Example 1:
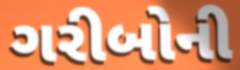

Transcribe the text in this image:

ગરીબોની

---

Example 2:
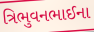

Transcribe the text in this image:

ત્રિભુવનભાઈના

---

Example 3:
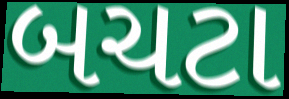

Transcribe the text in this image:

બચટા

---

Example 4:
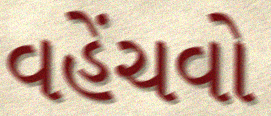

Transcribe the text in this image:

વહેંચવો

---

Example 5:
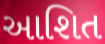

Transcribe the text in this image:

આશિત